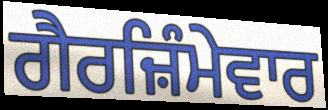
ਗੈਰਜ਼ਿੰਮੇਵਾਰ